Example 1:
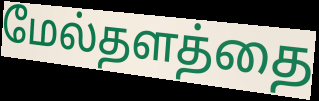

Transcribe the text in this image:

மேல்தளத்தை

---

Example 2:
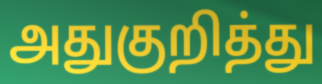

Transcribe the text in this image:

அதுகுறித்து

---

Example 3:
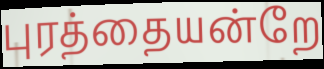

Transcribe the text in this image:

புரத்தையன்றே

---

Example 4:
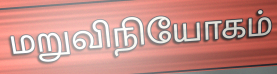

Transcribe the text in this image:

மறுவிநியோகம்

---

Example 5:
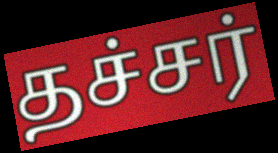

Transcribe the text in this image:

தச்சர்